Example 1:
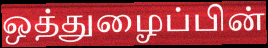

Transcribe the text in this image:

ஒத்துழைப்பின்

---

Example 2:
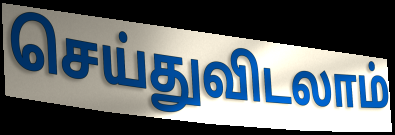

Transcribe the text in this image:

செய்துவிடலாம்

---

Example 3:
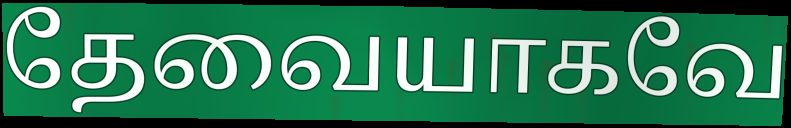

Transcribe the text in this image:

தேவையாகவே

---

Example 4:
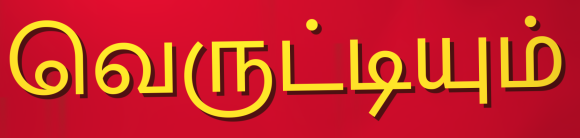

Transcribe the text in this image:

வெருட்டியும்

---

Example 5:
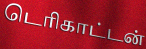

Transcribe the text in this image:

டெரிகாட்டன்